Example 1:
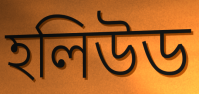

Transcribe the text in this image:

হলিউড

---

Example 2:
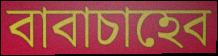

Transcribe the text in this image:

বাবাচাহেব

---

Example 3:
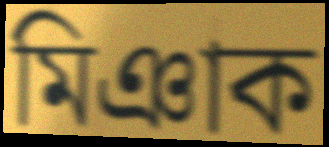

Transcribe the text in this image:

মিঞাক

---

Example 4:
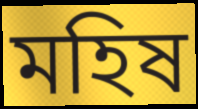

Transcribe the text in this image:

মহিষ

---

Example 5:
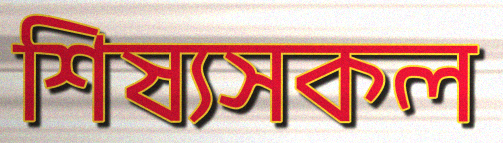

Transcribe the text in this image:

শিষ্যসকল